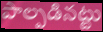
పాల్పడినట్టు